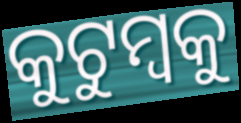
କୁଟୁମ୍ବକୁ